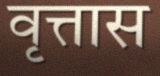
वृत्तास